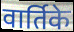
वार्तिके